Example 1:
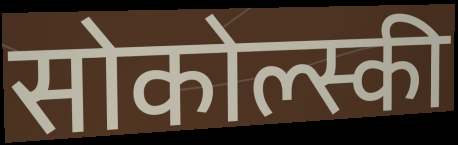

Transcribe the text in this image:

सोकोल्स्की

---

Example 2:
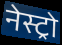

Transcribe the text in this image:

नेस्ट्रो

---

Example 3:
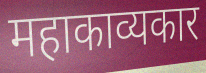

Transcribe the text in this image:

महाकाव्यकार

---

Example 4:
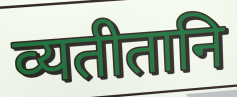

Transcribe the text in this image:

व्यतीतानि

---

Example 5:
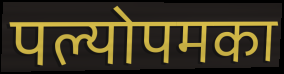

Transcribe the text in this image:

पल्योपमका